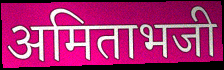
अमिताभजी